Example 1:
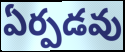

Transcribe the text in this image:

ఏర్పడవు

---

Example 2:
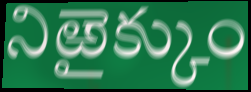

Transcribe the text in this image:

నిఱైక్కుం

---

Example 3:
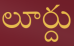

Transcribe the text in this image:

లూర్దు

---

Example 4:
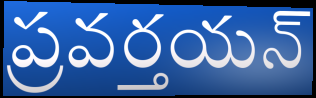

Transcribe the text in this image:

ప్రవర్తయన్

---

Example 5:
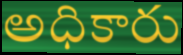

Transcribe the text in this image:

అధికారు